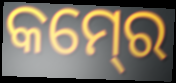
କମ୍‍ରେ